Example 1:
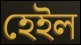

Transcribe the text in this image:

হেইল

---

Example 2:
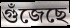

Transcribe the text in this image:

গুঁজেছে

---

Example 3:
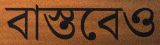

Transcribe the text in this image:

বাস্তবেও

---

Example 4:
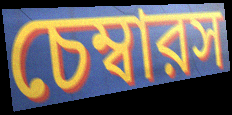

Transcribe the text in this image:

চেম্বারস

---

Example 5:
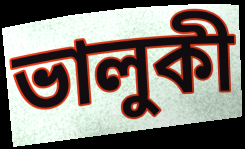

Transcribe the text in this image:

ভালুকী